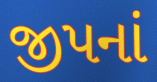
જીપનાં